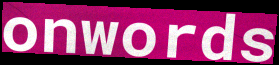
onwords